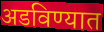
अडविण्यात